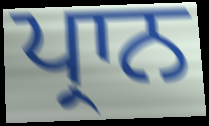
ਪ੍ਰਾਨ